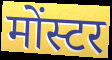
मोंस्टर